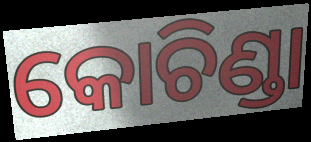
କୋଚିଣ୍ଡା